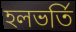
হলভর্তি